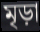
মৃড়া